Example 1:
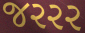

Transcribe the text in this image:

જરરર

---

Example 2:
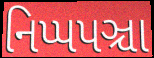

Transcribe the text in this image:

નિપ્પપઞ્ચા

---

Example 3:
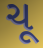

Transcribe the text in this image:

ચૂ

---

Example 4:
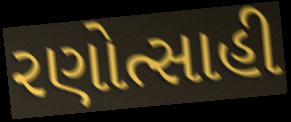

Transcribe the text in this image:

રણોત્સાહી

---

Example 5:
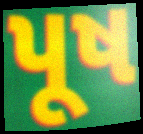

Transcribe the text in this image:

પૂષ